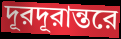
দূরদূরান্তরে